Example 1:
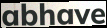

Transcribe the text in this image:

abhave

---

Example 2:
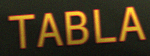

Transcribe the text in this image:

TABLA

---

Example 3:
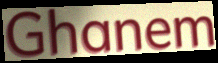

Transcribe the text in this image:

Ghanem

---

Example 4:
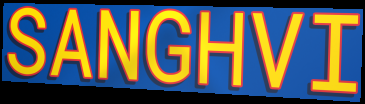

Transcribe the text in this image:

SANGHVI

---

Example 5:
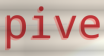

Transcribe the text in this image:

pive